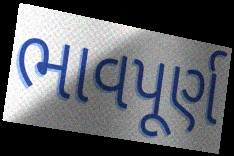
ભાવપૂર્ણ